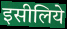
इसीलिये